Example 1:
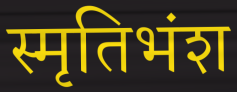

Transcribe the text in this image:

स्मृतिभंश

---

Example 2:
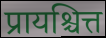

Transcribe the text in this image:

प्रायश्चित्त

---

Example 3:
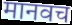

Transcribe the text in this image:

मानवच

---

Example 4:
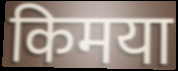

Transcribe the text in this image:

किमया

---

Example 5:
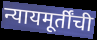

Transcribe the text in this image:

न्यायमूर्तींची